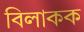
বিলাকক